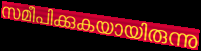
സമീപിക്കുകയായിരുന്നു